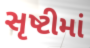
સૃષ્ટીમાં